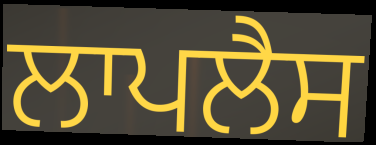
ਲਾਪਲੈਸ